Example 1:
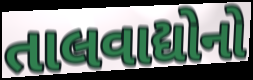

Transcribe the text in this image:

તાલવાદ્યોનો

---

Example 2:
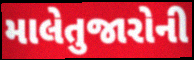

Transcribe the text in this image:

માલેતુજારોની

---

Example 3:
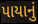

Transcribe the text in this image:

પાયાનું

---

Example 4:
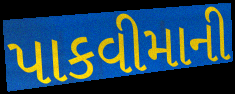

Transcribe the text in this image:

પાકવીમાની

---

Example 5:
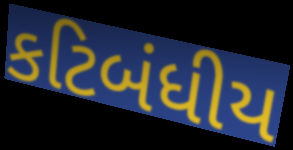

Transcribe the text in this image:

કટિબંધીય